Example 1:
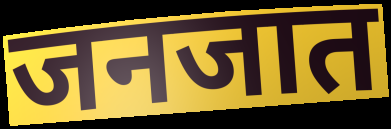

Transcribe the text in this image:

जनजात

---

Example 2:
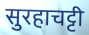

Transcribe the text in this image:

सुरहाचट्टी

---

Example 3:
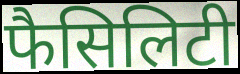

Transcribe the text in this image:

फैसिलिटी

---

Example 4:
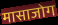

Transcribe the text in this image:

मासाजोग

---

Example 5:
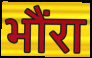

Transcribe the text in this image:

भौंरा